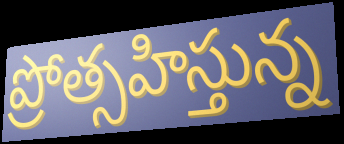
ప్రోత్సహిస్తున్న